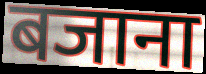
बजाना